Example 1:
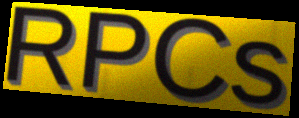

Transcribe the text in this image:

RPCs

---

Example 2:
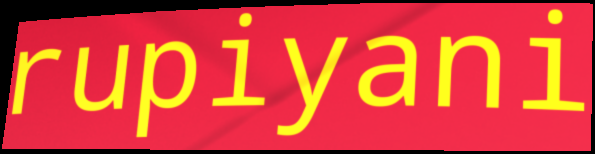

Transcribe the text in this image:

rupiyani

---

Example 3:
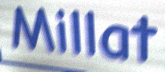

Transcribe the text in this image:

Millat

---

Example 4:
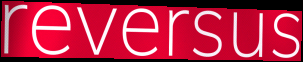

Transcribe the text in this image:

reversus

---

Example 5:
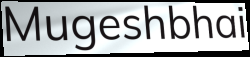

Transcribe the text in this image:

Mugeshbhai